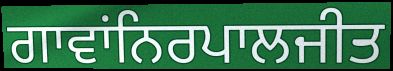
ਗਾਵਾਂਨਿਰਪਾਲਜੀਤ